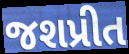
જશપ્રીત